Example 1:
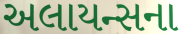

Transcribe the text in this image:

અલાયન્સના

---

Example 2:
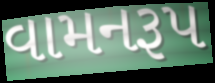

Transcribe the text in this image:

વામનરૂપ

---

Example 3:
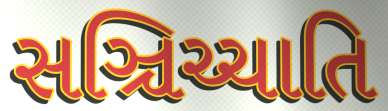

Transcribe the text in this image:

સઞ્ચિચ્ચાતિ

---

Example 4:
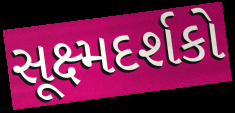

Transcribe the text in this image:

સૂક્ષ્મદર્શકો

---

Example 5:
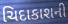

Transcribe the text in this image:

ચિદાકાશની